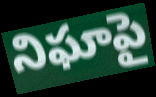
నిఘాపై